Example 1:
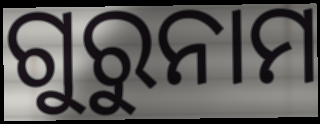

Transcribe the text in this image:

ଗୁରୁନାମ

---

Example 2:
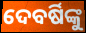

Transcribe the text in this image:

ଦେବର୍ଷିଙ୍କୁ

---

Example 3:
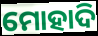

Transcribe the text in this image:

ମୋହାଦି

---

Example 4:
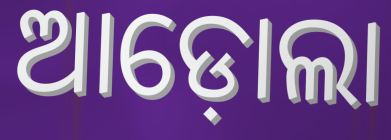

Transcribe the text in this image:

ଆଡ଼ୋଲା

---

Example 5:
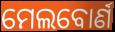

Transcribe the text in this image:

ମେଲବୋର୍ଣ